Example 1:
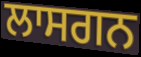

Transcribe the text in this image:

ਲਾਸਗਨ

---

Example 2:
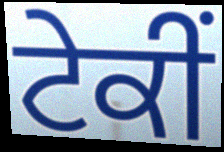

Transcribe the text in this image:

ਟੇਕੀਂ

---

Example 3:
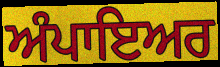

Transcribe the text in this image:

ਅੰਪਾਇਅਰ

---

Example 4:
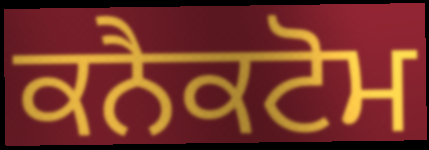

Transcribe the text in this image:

ਕਨੈਕਟੋਮ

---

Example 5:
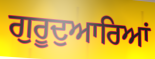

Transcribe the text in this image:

ਗੁਰੂਦੁਆਰਿਆਂ